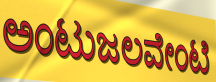
ಅಂಟುಜಲವೇಂಟೆ